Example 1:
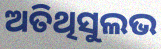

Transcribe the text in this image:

ଅତିଥିସୁଲଭ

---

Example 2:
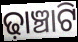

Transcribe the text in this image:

ଢ଼ାଞ୍ଚାଟି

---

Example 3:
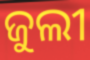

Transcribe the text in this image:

ଜୁଲୀ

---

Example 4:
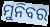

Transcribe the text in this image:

ମୁନିବର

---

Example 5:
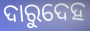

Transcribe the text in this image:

ଦାରୁଦେହ